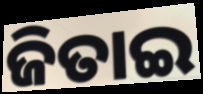
ଜିତାଇ